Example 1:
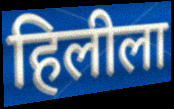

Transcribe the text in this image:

हिलीला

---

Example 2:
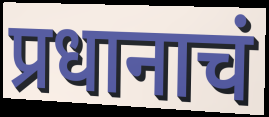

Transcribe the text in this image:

प्रधानाचं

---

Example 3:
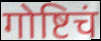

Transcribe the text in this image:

गोष्टिचं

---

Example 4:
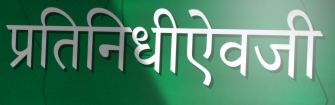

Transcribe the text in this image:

प्रतिनिधीऐवजी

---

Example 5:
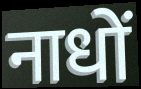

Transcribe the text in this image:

नाधों